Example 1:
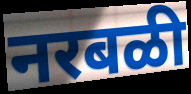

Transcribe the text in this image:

नरबळी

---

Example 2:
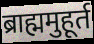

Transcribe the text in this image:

ब्राह्ममुहूर्त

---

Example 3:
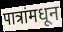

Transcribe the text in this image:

पात्रांमधून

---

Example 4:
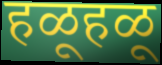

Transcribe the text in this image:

हळूहळू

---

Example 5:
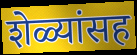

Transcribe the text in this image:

शेळ्यांसह